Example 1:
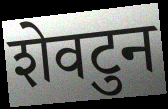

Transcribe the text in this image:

शेवटुन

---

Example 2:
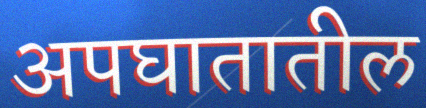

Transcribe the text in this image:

अपघातातील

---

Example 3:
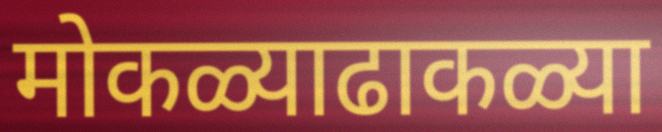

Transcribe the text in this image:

मोकळ्याढाकळ्या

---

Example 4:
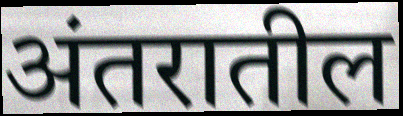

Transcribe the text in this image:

अंतरातील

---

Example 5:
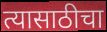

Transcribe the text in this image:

त्यासाठीचा